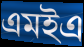
এমইএ